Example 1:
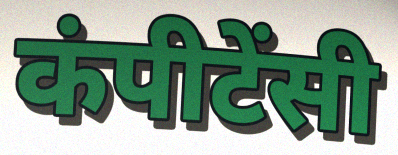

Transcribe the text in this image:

कंपीटेंसी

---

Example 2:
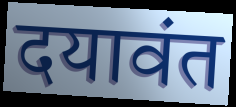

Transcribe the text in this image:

दयावंत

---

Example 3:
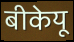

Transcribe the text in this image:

बीकेयू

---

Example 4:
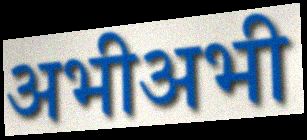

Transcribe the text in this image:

अभीअभी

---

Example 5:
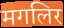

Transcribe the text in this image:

मगलिर